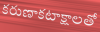
కరుణాకటాక్షాలతో